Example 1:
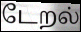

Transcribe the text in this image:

டேறல்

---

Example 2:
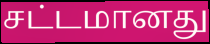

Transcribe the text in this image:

சட்டமானது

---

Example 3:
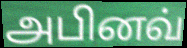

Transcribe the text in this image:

அபினவ்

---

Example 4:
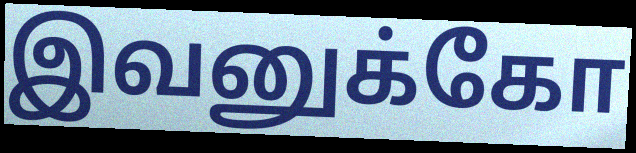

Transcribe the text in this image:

இவனுக்கோ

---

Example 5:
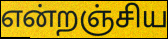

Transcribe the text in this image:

என்றஞ்சிய